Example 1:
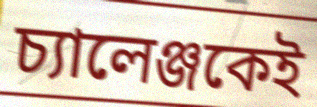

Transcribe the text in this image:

চ্যালেঞ্জকেই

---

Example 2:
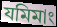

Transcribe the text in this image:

যমিমাং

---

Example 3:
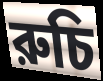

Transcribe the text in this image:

রুচি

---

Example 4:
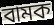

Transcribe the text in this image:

বামক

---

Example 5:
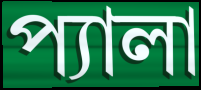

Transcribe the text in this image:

প্যালা